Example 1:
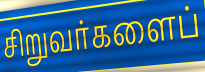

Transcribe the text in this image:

சிறுவர்களைப்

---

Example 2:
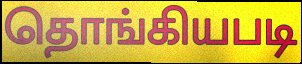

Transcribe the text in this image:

தொங்கியபடி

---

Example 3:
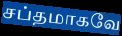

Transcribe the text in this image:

சப்தமாகவே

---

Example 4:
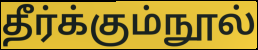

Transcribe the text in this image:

தீர்க்கும்நூல்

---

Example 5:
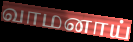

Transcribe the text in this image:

வாமனாய்